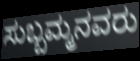
ಸುಬ್ಬಮ್ಮನವರು